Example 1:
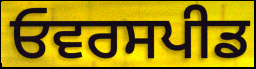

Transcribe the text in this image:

ਓਵਰਸਪੀਡ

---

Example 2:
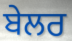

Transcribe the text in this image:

ਬੇਲਰ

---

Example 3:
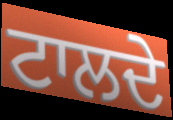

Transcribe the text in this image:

ਟਾਲਦੇ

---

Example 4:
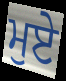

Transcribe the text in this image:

ਮੁਏ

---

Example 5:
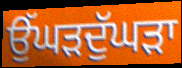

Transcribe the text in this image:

ਉੱਘੜਦੁੱਘੜਾ